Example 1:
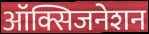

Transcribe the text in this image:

ऑक्सिजनेशन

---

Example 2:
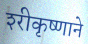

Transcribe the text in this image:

श्रीकृष्णाने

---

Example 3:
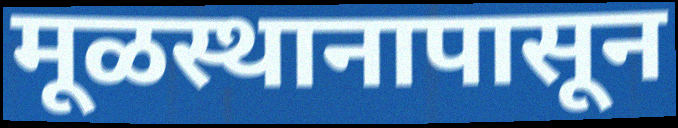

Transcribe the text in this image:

मूळस्थानापासून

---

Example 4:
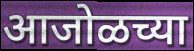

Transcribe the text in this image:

आजोळच्या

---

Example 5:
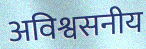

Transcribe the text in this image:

अविश्वसनीय